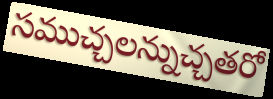
సముచ్చలన్నుచ్చతరో